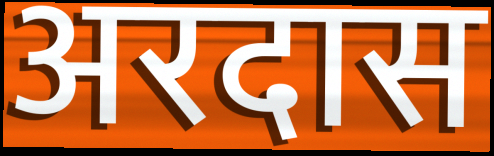
अरदास